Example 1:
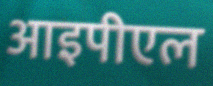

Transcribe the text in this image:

आइपीएल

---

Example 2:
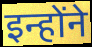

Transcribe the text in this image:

इन्होंने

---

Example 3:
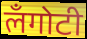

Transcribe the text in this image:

लँगोटी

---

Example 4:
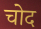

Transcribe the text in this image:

चोद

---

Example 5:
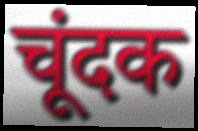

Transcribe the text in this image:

चूंदक